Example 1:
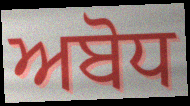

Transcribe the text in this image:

ਅਬੋਧ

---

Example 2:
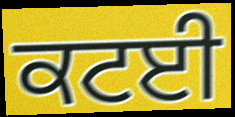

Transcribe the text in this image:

ਕਟਈ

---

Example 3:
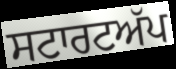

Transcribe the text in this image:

ਸਟਾਰਟਅੱਪ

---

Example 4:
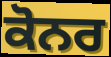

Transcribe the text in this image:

ਕੋਨਰ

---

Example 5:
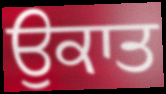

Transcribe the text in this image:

ਉਕਾਤ